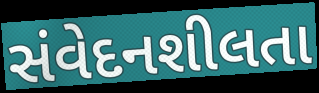
સંવેદનશીલતા